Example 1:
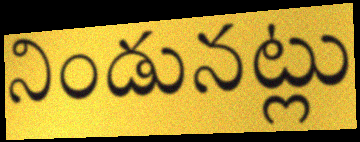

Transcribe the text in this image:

నిండునట్లు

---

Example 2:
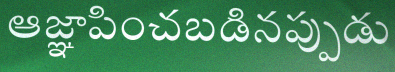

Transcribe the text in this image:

ఆజ్ఞాపించబడినప్పుడు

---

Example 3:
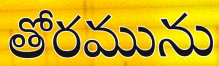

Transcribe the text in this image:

తోరమును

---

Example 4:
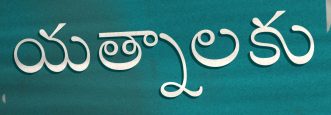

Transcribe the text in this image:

యత్నాలకు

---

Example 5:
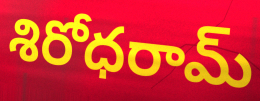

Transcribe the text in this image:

శిరోధరామ్